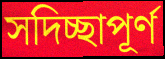
সদিচ্ছাপূর্ণ